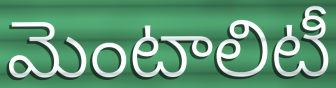
మెంటాలిటీ